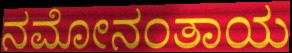
ನಮೋನಂತಾಯ